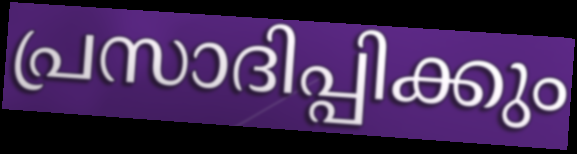
പ്രസാദിപ്പിക്കും